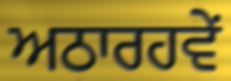
ਅਠਾਰਹਵੇਂ